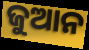
ଜୁଆନ